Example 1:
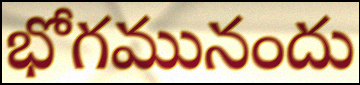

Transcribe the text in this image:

భోగమునందు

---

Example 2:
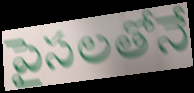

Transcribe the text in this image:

పైసలతోనే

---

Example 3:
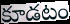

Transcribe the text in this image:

కూడటం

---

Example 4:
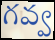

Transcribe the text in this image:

గవ్వ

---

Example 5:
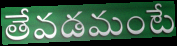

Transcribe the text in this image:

తేవడమంటే